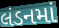
લંડનમાં